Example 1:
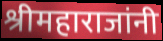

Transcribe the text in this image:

श्रीमहाराजांनी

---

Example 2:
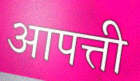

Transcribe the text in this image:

आपत्ती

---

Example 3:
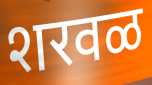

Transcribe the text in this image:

शरवळ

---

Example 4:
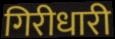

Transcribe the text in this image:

गिरीधारी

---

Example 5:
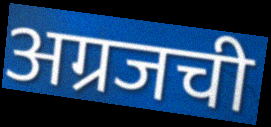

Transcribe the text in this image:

अग्रजची